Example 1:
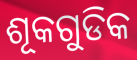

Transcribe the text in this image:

ଶୂକଗୁଡିକ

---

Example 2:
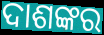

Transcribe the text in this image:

ଦାଶଙ୍କର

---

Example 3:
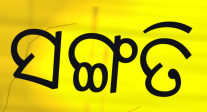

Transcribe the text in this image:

ସଙ୍ଗତି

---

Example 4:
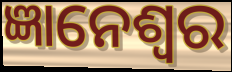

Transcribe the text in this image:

ଜ୍ଞାନେଶ୍ୱର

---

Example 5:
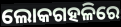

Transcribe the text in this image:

ଲୋକଗହଳିରେ